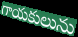
గాయకులును